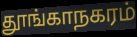
தூங்காநகரம்